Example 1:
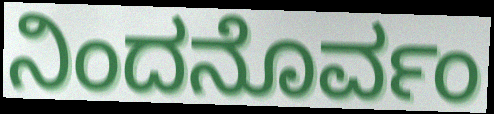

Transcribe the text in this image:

ನಿಂದನೊರ್ವಂ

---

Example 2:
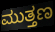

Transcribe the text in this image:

ಮುತ್ತಣ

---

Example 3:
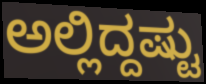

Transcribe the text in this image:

ಅಲ್ಲಿದ್ದಷ್ಟು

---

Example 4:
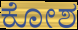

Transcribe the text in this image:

ಕೋಶ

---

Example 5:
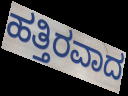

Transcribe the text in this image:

ಹತ್ತಿರವಾದ